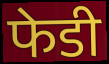
फेडी